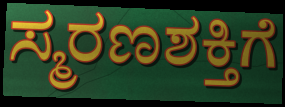
ಸ್ಮರಣಶಕ್ತಿಗೆ